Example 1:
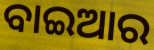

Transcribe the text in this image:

ବାଇଆର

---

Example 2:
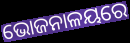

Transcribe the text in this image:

ଭୋଜନାଳୟରେ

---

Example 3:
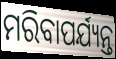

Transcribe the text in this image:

ମରିବାପର୍ଯ୍ୟନ୍ତ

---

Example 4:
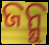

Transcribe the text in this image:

ଜନ୍ମୁ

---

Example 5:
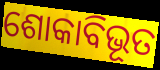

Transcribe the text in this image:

ଶୋକାବିଭୂତ